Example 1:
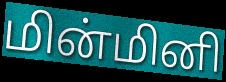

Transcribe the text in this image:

மின்மினி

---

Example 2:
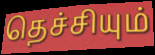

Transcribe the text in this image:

தெச்சியும்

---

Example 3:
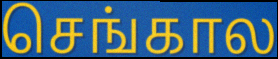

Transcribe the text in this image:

செங்கால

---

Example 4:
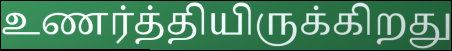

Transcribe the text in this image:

உணர்த்தியிருக்கிறது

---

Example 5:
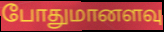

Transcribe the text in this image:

போதுமானளவு